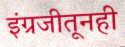
इंग्रजीतूनही